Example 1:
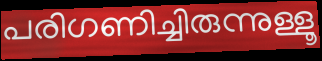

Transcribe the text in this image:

പരിഗണിച്ചിരുന്നുള്ളൂ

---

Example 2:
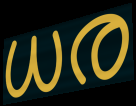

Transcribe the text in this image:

ധര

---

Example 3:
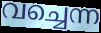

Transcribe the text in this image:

വച്ചെന്ന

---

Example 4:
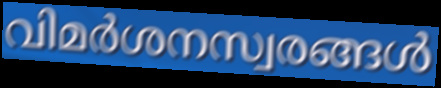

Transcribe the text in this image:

വിമർശനസ്വരങ്ങൾ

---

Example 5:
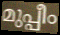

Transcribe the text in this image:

മുപ്പീം